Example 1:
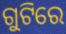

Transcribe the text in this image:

ଗୁଟିରେ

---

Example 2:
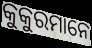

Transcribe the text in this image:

କୁକୁରମାନେ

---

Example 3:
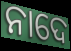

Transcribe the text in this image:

ନାଦେ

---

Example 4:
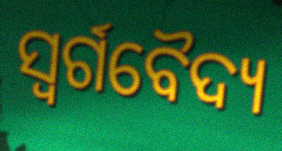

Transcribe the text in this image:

ସ୍ୱର୍ଗବୈଦ୍ୟ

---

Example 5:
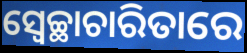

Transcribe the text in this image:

ସ୍ୱେଚ୍ଛାଚାରିତାରେ